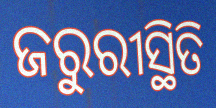
ଜରୁରୀସ୍ଥିତି